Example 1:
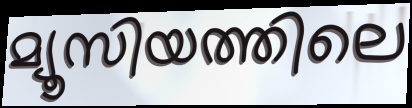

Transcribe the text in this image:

മ്യൂസിയത്തിലെ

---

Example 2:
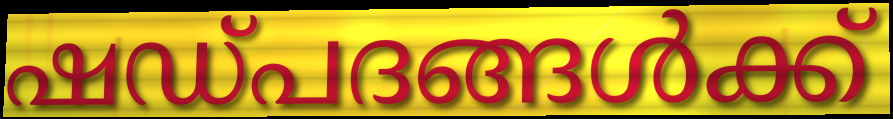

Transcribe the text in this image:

ഷഡ്പദങ്ങൾക്ക്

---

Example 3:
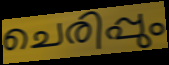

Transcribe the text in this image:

ചെരിപ്പും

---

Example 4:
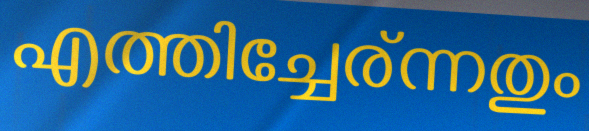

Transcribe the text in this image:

എത്തിച്ചേര്ന്നതും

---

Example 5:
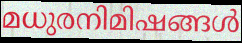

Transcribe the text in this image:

മധുരനിമിഷങ്ങൾ